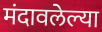
मंदावलेल्या